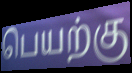
பெயற்கு